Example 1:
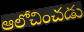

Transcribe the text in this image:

ఆలోచించడు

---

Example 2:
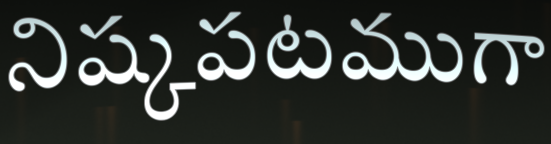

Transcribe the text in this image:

నిష్కపటముగా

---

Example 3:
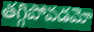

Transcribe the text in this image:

తగ్గిపోవడమో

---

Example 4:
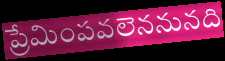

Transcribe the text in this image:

ప్రేమింపవలెననునది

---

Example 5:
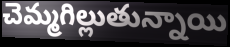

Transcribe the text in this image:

చెమ్మగిల్లుతున్నాయి